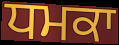
ਧਮਕਾ